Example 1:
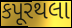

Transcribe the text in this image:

કપૂરથલા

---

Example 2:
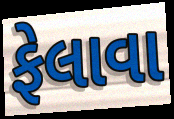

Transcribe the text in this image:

ફેલાવા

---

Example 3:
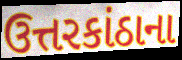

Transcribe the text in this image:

ઉત્તરકાંઠાના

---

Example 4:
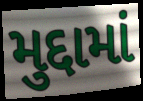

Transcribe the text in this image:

મુદ્દામાં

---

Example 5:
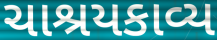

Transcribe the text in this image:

ચાશ્રયકાવ્ય